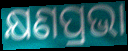
କ୍ଷଣପ୍ରଭା